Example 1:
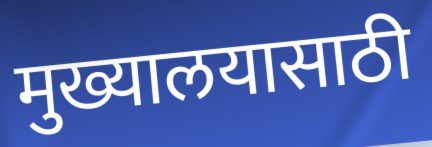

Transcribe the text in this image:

मुख्यालयासाठी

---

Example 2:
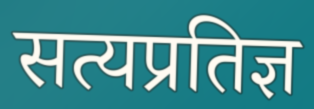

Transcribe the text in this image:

सत्यप्रतिज्ञ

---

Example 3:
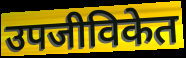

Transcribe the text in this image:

उपजीविकेत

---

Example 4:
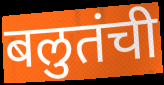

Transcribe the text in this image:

बलुतंची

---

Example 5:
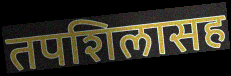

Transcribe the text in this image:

तपशिलासह